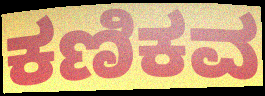
ಕಣಿಕವ